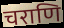
चराणि